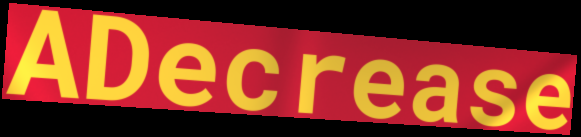
ADecrease